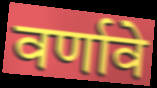
वर्णावे